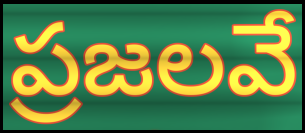
ప్రజలవే